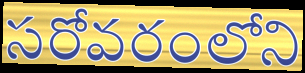
సరోవరంలోని